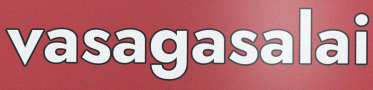
vasagasalai